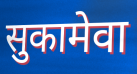
सुकामेवा